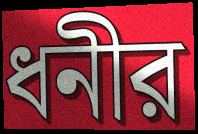
ধনীর